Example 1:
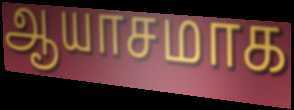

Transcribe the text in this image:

ஆயாசமாக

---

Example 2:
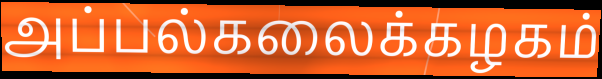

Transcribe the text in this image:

அப்பல்கலைக்கழகம்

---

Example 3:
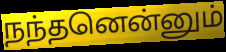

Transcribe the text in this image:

நந்தனென்னும்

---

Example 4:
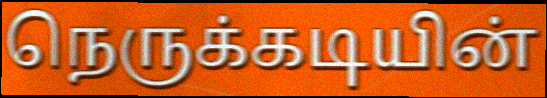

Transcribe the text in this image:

நெருக்கடியின்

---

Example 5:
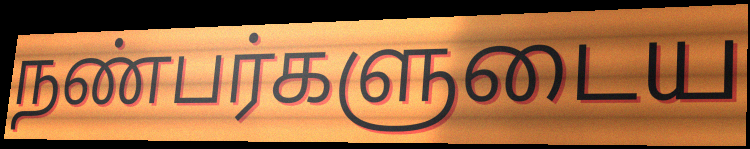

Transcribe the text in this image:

நண்பர்களுடைய